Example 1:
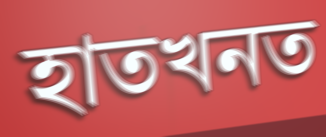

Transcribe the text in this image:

হাতখনত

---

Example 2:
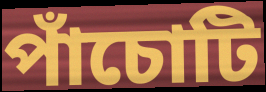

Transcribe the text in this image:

পাঁচোটি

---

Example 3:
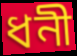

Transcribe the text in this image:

ধনী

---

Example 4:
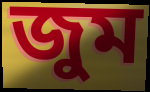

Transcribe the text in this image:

জুম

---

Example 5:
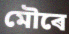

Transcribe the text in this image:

মৌৰে